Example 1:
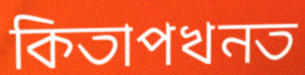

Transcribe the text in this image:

কিতাপখনত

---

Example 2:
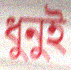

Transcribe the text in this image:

ধুনুই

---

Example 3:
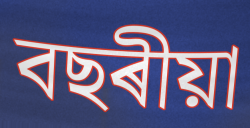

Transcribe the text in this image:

বছৰীয়া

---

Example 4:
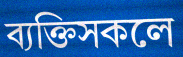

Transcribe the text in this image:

ব্যক্তিসকলে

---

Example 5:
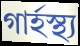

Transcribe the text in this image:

গাৰ্হস্থ্য